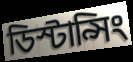
ডিস্টান্সিং